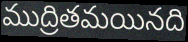
ముద్రితమయినది